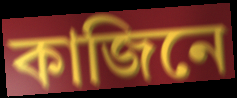
কাজিনে